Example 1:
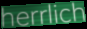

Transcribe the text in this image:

herrlich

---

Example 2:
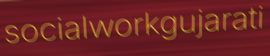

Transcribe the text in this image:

socialworkgujarati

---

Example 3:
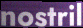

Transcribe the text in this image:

nostril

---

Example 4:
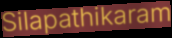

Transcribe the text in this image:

Silapathikaram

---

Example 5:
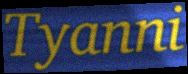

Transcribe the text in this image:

Tyanni